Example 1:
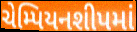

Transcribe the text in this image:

ચેમ્પિયનશીપમાં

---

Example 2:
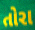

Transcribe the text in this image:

તોરા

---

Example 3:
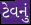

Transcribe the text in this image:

ટેવનું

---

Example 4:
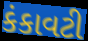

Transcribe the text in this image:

કંકાવટી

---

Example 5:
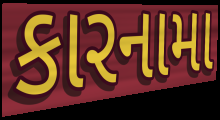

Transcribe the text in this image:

કારનામા